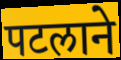
पटलाने